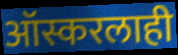
ऑस्करलाही